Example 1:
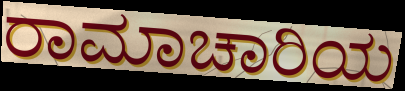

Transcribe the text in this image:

ರಾಮಾಚಾರಿಯ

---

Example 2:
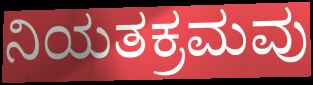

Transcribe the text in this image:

ನಿಯತಕ್ರಮವು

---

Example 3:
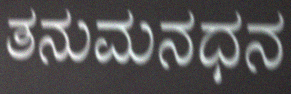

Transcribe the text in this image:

ತನುಮನಧನ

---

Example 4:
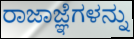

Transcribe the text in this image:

ರಾಜಾಜ್ಞೆಗಳನ್ನು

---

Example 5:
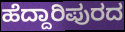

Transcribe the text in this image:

ಹೆದ್ದಾರಿಪುರದ